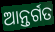
ଆନ୍ତର୍ଗତ